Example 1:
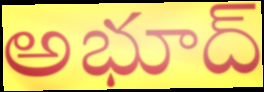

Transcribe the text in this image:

అభూద్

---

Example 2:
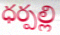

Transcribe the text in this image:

ధర్పల్లి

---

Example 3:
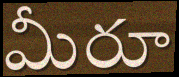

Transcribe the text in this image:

మీరూ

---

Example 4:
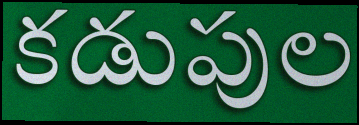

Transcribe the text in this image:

కడుపుల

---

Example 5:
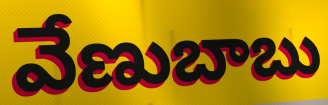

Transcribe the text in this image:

వేణుబాబు